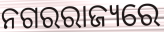
ନଗରରାଜ୍ୟରେ